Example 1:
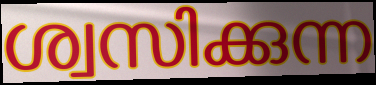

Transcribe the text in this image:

ശ്വസിക്കുന്ന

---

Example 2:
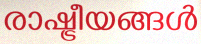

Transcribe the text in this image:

രാഷ്ട്രീയങ്ങൾ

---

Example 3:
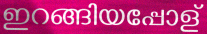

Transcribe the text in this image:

ഇറങ്ങിയപ്പോള്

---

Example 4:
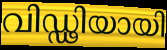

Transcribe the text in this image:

വിഡ്ഢിയായി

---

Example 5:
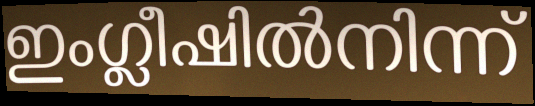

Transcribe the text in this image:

ഇംഗ്ലീഷിൽനിന്ന്